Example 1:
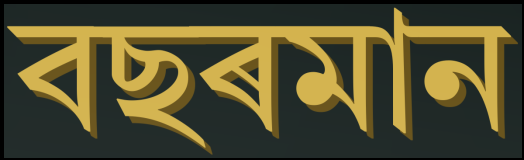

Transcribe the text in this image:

বছৰমান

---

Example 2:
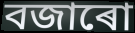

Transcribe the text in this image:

বজাৰো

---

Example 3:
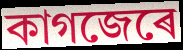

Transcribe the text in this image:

কাগজেৰে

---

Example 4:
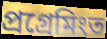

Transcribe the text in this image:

প্ৰগ্ৰেমিংত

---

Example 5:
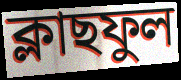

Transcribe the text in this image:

ক্লাছফুল